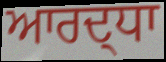
ਆਰਦ੍ਧਾ